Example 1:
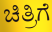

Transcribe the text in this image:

ಚಿತ್ರಿಗೆ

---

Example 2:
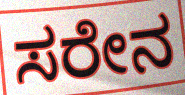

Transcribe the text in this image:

ಸರೇನ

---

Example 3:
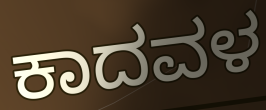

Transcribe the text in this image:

ಕಾದವಳ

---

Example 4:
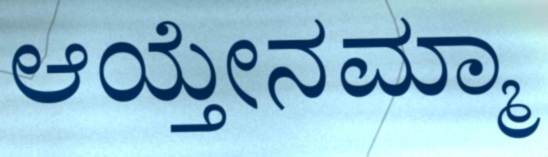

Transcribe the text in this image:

ಆಯ್ತೇನಮ್ಮಾ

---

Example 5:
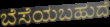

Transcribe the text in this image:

ಬೆಸೆಯಬಹುದೆ